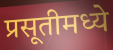
प्रसूतीमध्ये